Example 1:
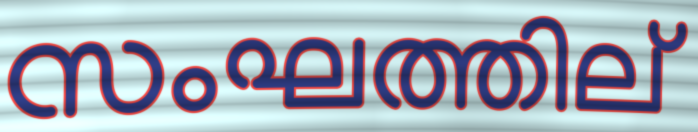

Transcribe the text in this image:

സംഘത്തില്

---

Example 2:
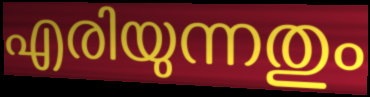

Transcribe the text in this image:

എരിയുന്നതും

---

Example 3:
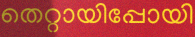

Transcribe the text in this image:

തെറ്റായിപ്പോയി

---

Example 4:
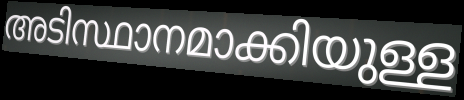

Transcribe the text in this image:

അടിസ്ഥാനമാക്കിയുള്ള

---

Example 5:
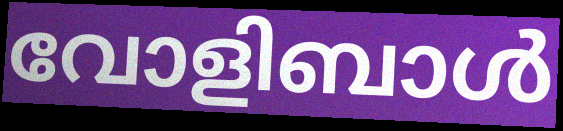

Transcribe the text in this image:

വോളിബാൾ